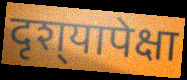
दृश्यापेक्षा